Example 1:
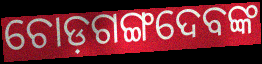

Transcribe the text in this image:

ଚୋଡ଼ଗଙ୍ଗଦେବଙ୍କ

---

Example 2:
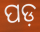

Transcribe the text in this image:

ପଡ଼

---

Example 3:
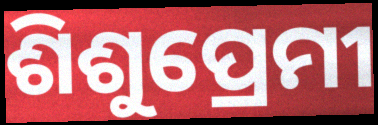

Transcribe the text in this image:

ଶିଶୁପ୍ରେମୀ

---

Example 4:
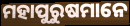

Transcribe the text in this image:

ମହାପୁରୁଷମାନେ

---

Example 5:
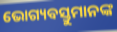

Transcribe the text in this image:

ଭୋଗ୍ୟବସ୍ତୁମାନଙ୍କ